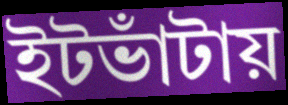
ইটভাঁটায়